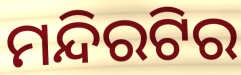
ମନ୍ଦିରଟିର